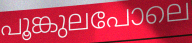
പൂങ്കുലപോലെ